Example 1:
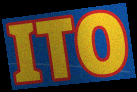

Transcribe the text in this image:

ITO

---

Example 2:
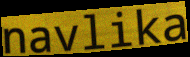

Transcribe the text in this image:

navlika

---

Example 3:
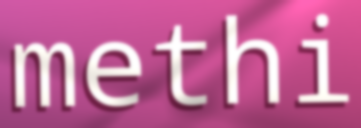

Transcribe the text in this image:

methi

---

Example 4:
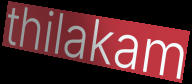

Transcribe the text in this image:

thilakam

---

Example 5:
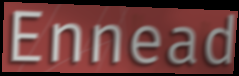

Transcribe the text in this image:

Ennead